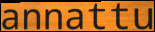
annattu